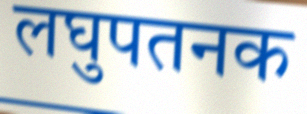
लघुपतनक